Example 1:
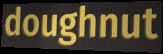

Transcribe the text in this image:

doughnut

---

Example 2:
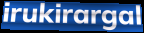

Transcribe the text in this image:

irukirargal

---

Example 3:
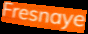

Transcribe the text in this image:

Fresnaye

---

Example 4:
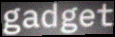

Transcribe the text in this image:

gadget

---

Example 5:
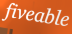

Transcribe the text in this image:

fiveable